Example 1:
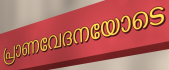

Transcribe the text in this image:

പ്രാണവേദനയോടെ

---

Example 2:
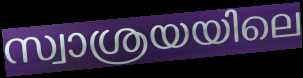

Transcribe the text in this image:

സ്വാശ്രയയിലെ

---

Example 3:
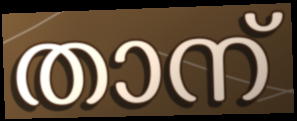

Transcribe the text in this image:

താന്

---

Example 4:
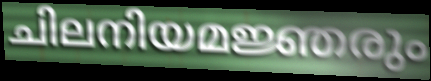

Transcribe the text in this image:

ചിലനിയമജ്ഞരും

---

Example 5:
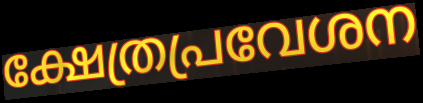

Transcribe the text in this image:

ക്ഷേത്രപ്രവേശന